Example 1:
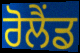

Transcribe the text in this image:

ਰੋਲੈਂਡ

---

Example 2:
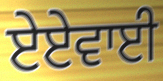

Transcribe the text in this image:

ਏਏਵਾਈ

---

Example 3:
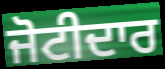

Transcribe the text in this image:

ਜੋਟੀਦਾਰ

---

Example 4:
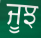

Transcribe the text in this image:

ਜੂਝ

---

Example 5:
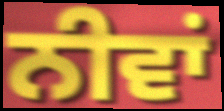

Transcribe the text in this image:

ਨੀਵਾਂ